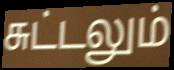
சுட்டலும்